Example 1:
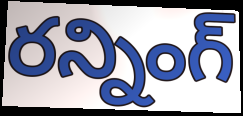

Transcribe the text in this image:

రన్నింగ్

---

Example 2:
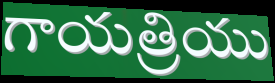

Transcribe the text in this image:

గాయత్రియు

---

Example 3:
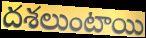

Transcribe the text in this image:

దశలుంటాయి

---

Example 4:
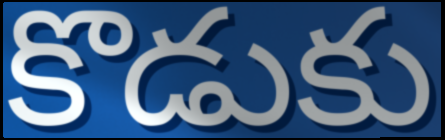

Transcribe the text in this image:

కొడుకు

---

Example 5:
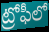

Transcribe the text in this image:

ట్రోఫీలో